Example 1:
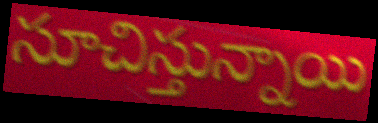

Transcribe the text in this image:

సూచిస్తున్నాయి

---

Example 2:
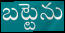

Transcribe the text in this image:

బట్టెను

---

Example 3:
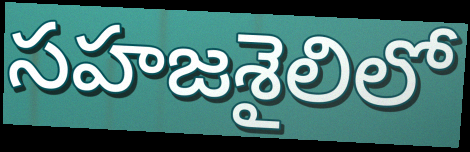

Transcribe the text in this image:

సహజశైలిలో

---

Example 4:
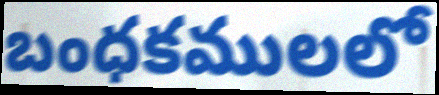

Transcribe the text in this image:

బంధకములలో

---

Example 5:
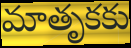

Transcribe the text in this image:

మాతృకకు